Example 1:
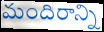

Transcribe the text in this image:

మందిరాన్ని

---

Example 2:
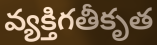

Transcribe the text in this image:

వ్యక్తిగతీకృత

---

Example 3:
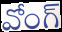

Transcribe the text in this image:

వోంగ్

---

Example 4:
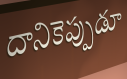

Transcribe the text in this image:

దానికెప్పుడూ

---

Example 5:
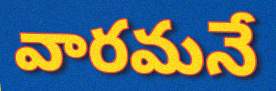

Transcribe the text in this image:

వారమనే